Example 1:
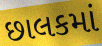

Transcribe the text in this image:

છાલકમાં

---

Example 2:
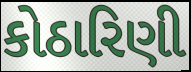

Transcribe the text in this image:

કોઠારિણી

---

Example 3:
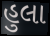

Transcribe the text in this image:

હુલા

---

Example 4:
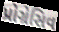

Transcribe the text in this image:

પ્રોગ્રેસિવ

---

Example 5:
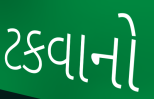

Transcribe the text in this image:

ટકવાનો